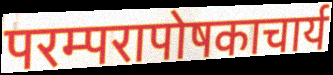
परम्परापोषकाचार्य